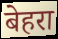
बेहरा